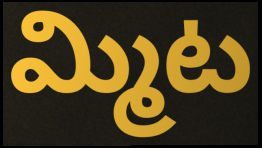
మ్మిట